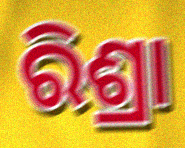
ରିଶ୍ରା